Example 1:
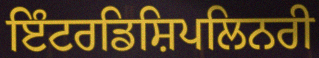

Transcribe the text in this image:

ਇੰਟਰਡਿਸ਼ਿਪਲਿਨਰੀ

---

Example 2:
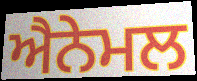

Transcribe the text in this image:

ਐਨੇਮਲ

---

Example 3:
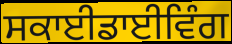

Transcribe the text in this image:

ਸਕਾਈਡਾਈਵਿੰਗ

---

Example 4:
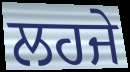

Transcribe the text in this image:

ਲਹਜੇ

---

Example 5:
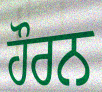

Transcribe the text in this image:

ਹੌਰਨ